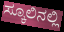
ಸ್ಕೂಲಿನಲ್ಲಿ